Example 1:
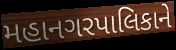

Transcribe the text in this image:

મહાનગરપાલિકાને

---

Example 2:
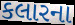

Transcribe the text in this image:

કલારના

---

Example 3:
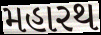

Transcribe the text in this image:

મહારથ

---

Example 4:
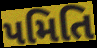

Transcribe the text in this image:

પમિતિ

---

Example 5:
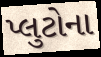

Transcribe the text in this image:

પ્લુટોના